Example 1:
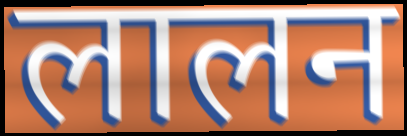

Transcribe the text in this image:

लालन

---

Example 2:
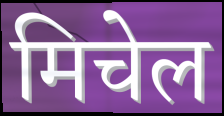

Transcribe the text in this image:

मिचेल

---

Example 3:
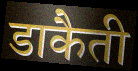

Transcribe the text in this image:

डाकैती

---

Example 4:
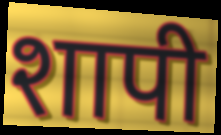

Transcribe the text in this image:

शापी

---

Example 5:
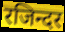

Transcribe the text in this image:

रजिन्दर